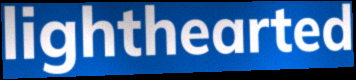
lighthearted